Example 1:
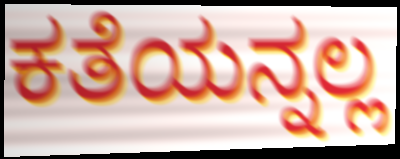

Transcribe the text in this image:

ಕತೆಯನ್ನಲ್ಲ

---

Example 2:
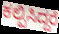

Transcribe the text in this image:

ಕಲ್ಪಿಸಿದ್ದರೆ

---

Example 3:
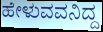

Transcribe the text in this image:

ಹೇಳುವವನಿದ್ದ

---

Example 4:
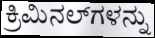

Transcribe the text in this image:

ಕ್ರಿಮಿನಲ್‍ಗಳನ್ನು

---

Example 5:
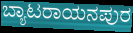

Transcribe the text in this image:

ಬ್ಯಾಟರಾಯನಪುರ